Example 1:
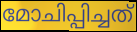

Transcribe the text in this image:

മോചിപ്പിച്ചത്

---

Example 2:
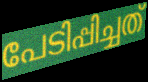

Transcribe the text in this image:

പേടിപ്പിച്ചത്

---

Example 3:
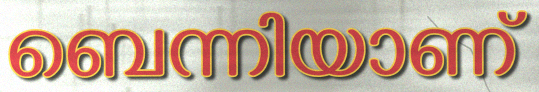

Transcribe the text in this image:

ബെന്നിയാണ്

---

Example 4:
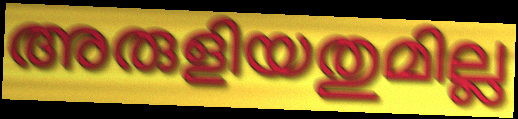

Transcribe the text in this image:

അരുളിയതുമില്ല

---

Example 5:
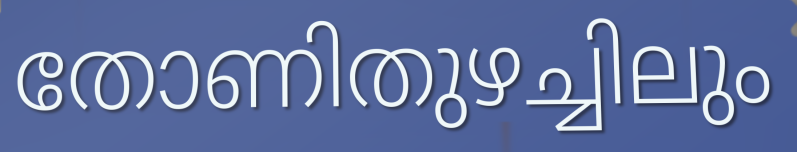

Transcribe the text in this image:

തോണിതുഴച്ചിലും